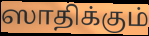
ஸாதிக்கும்